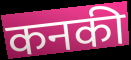
कनकी